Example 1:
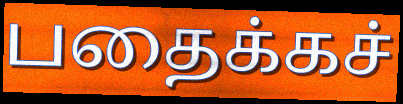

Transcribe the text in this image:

பதைக்கச்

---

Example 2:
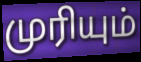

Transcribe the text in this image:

முரியும்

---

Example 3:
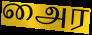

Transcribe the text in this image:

அைர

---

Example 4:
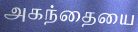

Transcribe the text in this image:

அகந்தையை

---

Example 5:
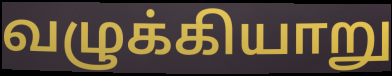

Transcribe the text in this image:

வழுக்கியாறு